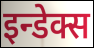
इन्डेक्स